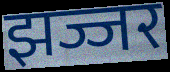
झज्जर